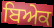
ਬਿਅੇਕ